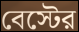
বেস্টের